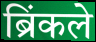
ब्रिंकले